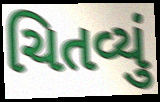
ચિતવ્યું